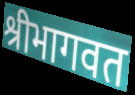
श्रीभागवत